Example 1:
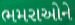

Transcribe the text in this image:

ભમરાઓને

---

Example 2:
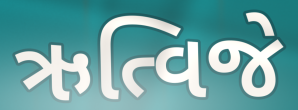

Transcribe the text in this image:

ઋત્વિજે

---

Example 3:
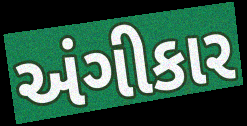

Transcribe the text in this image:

અંગીકાર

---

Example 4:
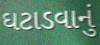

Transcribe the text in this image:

ઘટાડવાનું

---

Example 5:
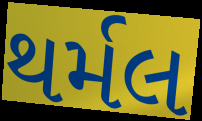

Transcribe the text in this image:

થર્મલ